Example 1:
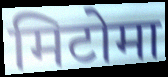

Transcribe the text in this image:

मिटोमा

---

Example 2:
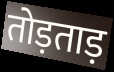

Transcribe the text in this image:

तोड़ताड़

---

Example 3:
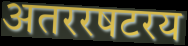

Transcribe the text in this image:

अतररषटरय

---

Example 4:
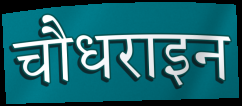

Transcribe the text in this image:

चौधराइन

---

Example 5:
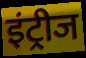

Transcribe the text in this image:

इंट्रीज